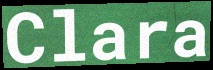
Clara